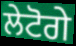
ਲੇਟੋਗੇ